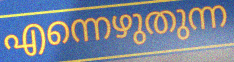
എന്നെഴുതുന്ന